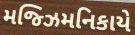
મજ્ઝિમનિકાયે